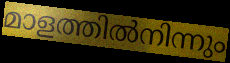
മാളത്തിൽനിന്നും